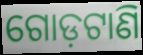
ଗୋଡ଼ଟାଣି